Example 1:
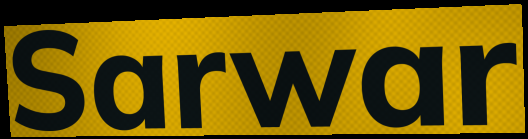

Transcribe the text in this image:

Sarwar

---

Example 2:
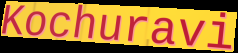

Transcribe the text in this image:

Kochuravi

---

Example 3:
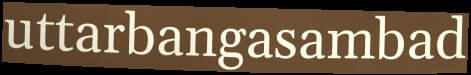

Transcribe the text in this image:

uttarbangasambad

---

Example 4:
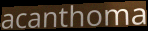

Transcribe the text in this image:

acanthoma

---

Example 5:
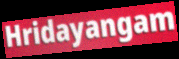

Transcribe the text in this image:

Hridayangam